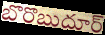
బొరొబుదూర్